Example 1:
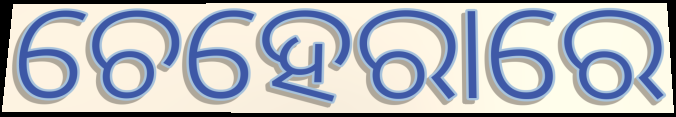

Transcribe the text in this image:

ଚେହେରାରେ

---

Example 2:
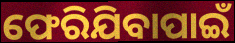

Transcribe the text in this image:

ଫେରିଯିବାପାଇଁ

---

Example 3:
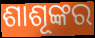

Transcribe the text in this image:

ଶାଶୂଙ୍କର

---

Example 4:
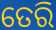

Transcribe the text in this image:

ତେରି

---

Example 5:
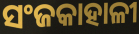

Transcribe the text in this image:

ସଂଜକାହାଳୀ